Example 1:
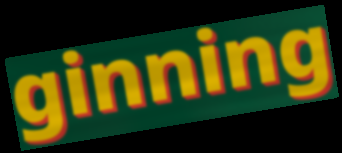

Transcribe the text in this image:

ginning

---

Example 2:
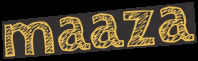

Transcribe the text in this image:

maaza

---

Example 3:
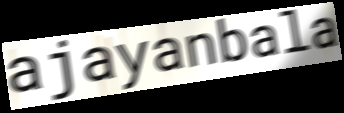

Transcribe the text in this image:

ajayanbala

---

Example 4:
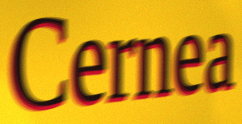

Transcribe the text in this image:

Cernea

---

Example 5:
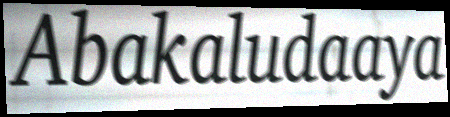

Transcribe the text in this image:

Abakaludaaya